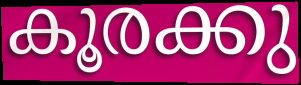
കൂരക്കു